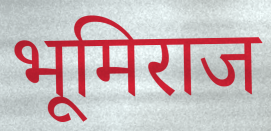
भूमिराज